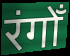
रंगोँ